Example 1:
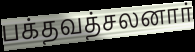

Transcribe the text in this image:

பக்தவத்சலனார்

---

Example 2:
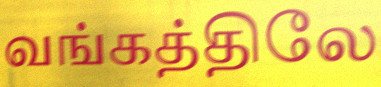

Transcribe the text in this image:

வங்கத்திலே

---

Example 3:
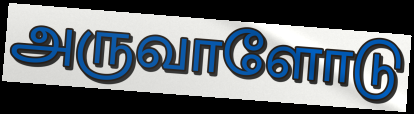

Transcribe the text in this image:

அருவாளோடு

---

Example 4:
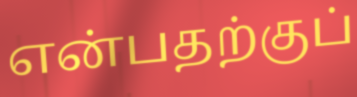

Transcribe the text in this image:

என்பதற்குப்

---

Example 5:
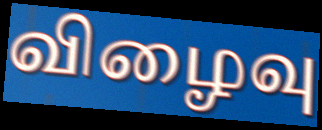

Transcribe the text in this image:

விழைவு